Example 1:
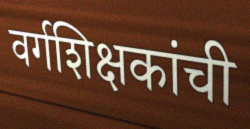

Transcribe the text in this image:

वर्गशिक्षकांची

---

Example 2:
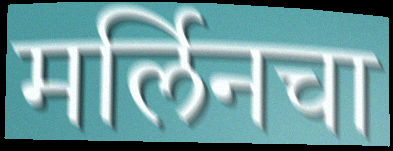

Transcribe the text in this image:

मर्लिनचा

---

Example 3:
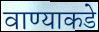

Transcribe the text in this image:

वाण्याकडे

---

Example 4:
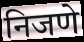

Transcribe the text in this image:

निजणे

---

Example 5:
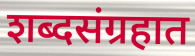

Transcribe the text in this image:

शब्दसंग्रहात